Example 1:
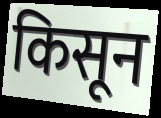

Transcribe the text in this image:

किसून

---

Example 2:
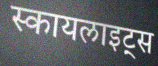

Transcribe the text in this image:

स्कायलाइट्स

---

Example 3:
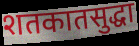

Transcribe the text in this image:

शतकातसुद्धा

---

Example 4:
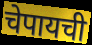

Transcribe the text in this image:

चेपायची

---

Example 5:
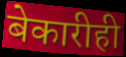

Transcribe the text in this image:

बेकारीही